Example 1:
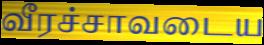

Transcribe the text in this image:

வீரச்சாவடைய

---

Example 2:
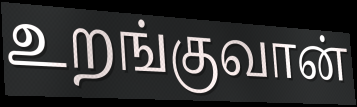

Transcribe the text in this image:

உறங்குவான்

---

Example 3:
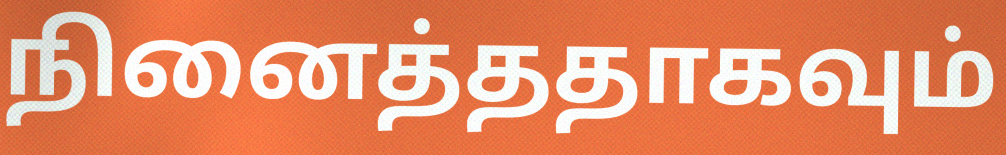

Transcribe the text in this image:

நினைத்ததாகவும்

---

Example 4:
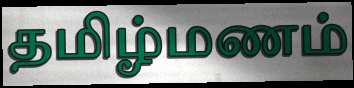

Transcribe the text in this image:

தமிழ்மணம்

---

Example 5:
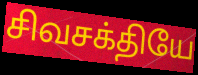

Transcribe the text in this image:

சிவசக்தியே